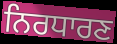
ਨਿਰਧਾਰਣ